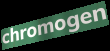
chromogen